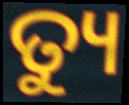
ତ୍ୟୁ